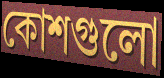
কোশগুলো